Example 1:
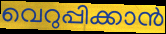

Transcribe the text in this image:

വെറുപ്പിക്കാൻ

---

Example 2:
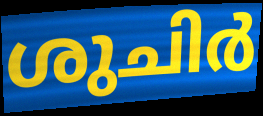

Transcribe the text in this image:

ശുചിർ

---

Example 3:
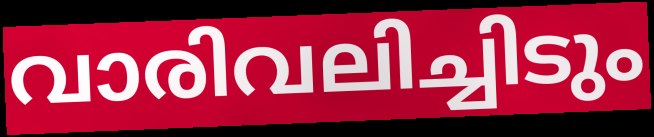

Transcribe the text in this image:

വാരിവലിച്ചിടും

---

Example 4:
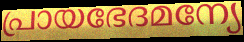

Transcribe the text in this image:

പ്രായഭേദമന്യേ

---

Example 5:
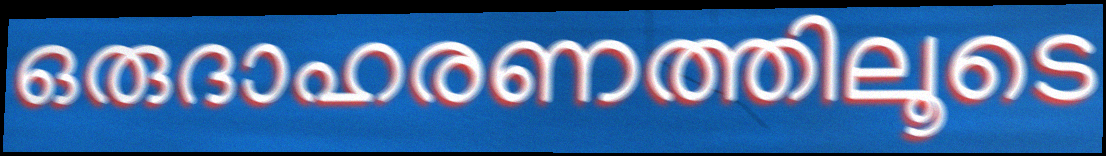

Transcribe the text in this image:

ഒരുദാഹരണത്തിലൂടെ